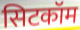
सिटकॉम